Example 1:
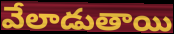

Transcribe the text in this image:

వేలాడుతాయి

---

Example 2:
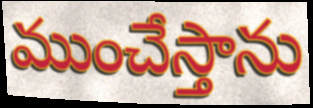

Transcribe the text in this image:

ముంచేస్తాను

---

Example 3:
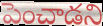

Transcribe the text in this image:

పెంచాడని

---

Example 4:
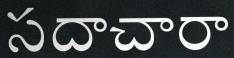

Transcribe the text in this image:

సదాచారా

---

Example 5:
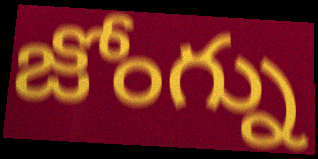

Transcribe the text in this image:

జోంగ్ను